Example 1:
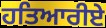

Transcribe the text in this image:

ਹਤਿਆਰੀਏ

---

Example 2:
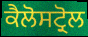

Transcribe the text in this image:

ਕੈਲੋਸਟ੍ਰੋਲ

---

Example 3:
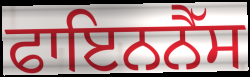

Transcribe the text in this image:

ਫਾਇਨਨੈੱਸ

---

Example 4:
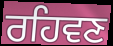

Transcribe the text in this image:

ਰਹਿਵਣ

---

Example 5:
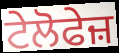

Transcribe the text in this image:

ਟੇਲੋਫੇਜ਼